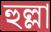
হুল্লা